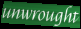
unwrought